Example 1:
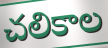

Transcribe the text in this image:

చలికాల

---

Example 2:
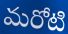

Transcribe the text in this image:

మరోటి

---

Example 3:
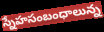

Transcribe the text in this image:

స్నేహసంబంధాలున్న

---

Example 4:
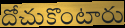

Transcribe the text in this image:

దోచుకొంటారు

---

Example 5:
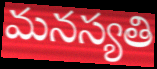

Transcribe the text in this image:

మనస్యతి